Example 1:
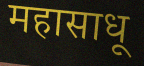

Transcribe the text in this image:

महासाधू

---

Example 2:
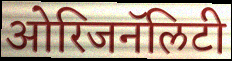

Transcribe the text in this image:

ओरिजनॅलिटी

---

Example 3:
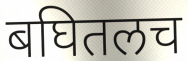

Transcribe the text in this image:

बघितलच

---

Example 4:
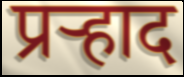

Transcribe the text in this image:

प्रर्‍हाद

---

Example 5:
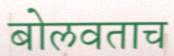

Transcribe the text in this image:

बोलवताच